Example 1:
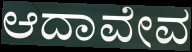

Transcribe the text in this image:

ಆದಾವೇವ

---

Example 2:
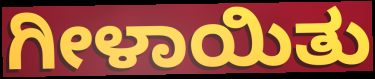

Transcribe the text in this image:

ಗೀಳಾಯಿತು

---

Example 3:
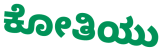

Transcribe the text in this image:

ಕೋತಿಯು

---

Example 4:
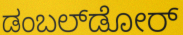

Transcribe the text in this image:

ಡಂಬಲ್‌ಡೋರ್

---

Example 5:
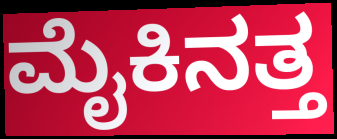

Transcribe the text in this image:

ಮೈಕಿನತ್ತ